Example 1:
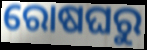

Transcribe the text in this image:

ରୋଷଘରୁ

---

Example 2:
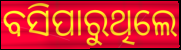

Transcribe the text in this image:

ବସିପାରୁଥିଲେ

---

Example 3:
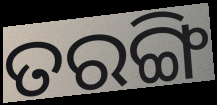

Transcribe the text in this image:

ତରଙ୍ଗି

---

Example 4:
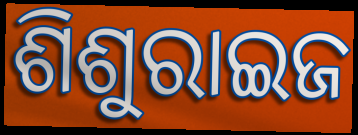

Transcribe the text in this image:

ଶିଶୁରାଇଜ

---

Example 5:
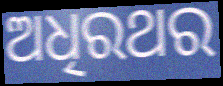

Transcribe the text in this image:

ଅଧିରଥର